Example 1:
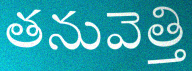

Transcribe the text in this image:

తనువెత్తి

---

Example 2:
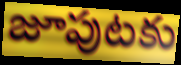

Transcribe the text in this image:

జూపుటకు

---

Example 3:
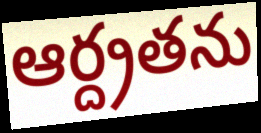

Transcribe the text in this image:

ఆర్ద్రతను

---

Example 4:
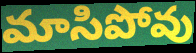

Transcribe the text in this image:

మాసిపోవు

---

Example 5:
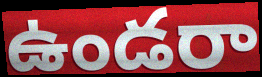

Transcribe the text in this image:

ఉండరా